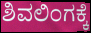
ಶಿವಲಿಂಗಕ್ಕೆ